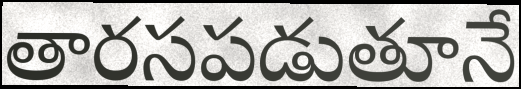
తారసపడుతూనే